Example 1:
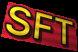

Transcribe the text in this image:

SFT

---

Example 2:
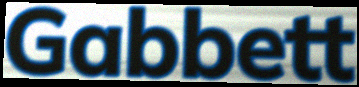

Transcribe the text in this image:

Gabbett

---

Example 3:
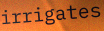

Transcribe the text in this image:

irrigates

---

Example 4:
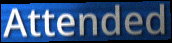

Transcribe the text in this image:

Attended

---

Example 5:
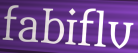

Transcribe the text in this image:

fabiflu